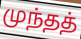
முந்தத்